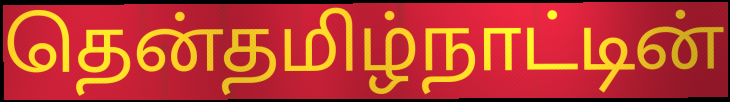
தென்தமிழ்நாட்டின்